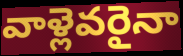
వాళ్లెవరైనా